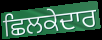
ਛਿਲਕੇਦਾਰ